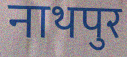
नाथपुर